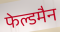
फेल्डमैन